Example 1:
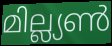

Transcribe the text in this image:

മില്ല്യൺ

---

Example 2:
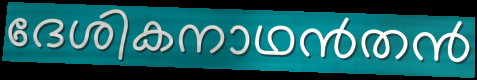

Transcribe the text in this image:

ദേശികനാഥൻതൻ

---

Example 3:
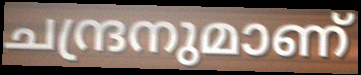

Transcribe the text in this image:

ചന്ദ്രനുമാണ്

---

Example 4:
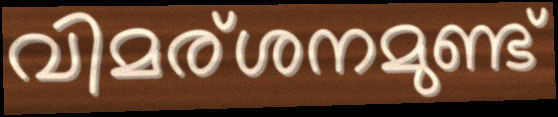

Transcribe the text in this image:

വിമര്ശനമുണ്ട്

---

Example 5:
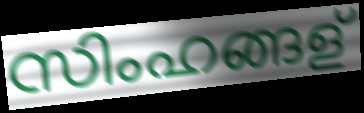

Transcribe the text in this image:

സിംഹങ്ങള്